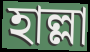
হাল্লা